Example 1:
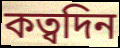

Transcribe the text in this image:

কত্বদিন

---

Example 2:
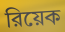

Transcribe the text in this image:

রিয়েক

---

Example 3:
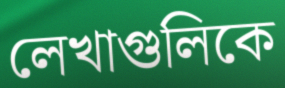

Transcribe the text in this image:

লেখাগুলিকে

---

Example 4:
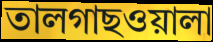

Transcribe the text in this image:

তালগাছওয়ালা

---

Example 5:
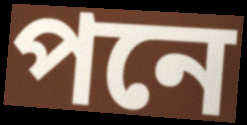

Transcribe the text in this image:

পনে